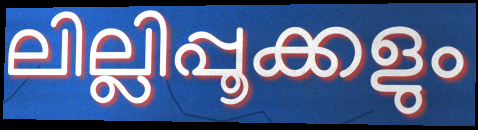
ലില്ലിപ്പൂക്കളും